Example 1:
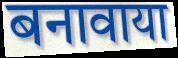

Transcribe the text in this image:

बनावाया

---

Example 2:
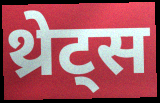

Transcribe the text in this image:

थ्रेट्स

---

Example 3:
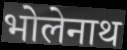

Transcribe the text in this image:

भोलेनाथ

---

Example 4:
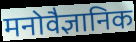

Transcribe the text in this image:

मनोवैज्ञानिक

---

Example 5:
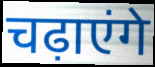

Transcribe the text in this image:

चढ़ाएंगे